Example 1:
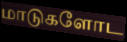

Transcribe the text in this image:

மாடுகளோட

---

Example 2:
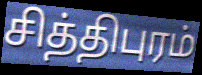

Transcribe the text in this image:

சித்திபுரம்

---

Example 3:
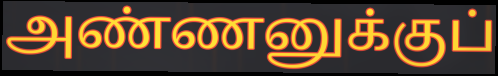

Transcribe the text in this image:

அண்ணனுக்குப்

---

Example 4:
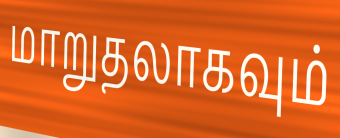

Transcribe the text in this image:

மாறுதலாகவும்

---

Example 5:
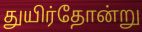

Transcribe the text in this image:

துயிர்தோன்று